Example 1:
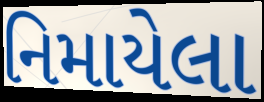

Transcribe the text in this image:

નિમાયેલા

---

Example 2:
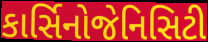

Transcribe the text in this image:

કાર્સિનોજેનિસિટી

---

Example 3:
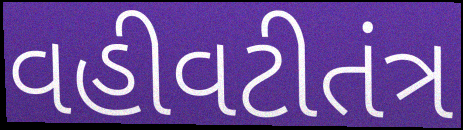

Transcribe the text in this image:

વહીવટીતંત્ર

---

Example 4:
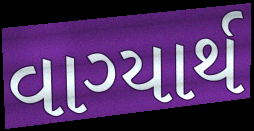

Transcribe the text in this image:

વાગ્યાર્થ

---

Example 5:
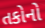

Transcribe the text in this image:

તકોનો